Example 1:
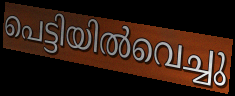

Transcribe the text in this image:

പെട്ടിയിൽവെച്ചു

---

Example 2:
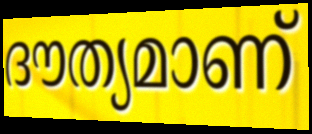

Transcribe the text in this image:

ദൗത്യമാണ്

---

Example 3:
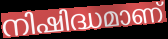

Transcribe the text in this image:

നിഷിദ്ധമാണ്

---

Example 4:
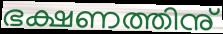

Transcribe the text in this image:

ഭക്ഷണത്തിനു്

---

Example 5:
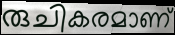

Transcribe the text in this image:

രുചികരമാണ്